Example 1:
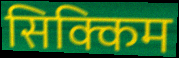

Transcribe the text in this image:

सिक्किम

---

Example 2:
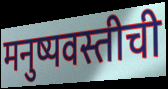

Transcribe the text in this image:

मनुष्यवस्तीची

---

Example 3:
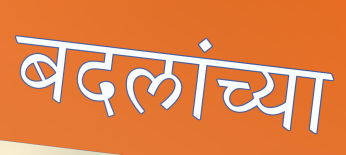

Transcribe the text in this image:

बदलांच्या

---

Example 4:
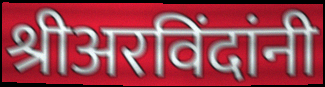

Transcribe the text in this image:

श्रीअरविंदांनी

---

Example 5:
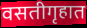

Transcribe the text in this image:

वसतीगृहात